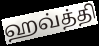
ஹவ்த்தி